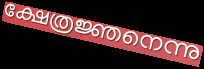
ക്ഷേത്രജ്ഞനെന്നു